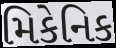
મિકેનિક